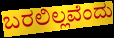
ಬರಲಿಲ್ಲವೆಂದು